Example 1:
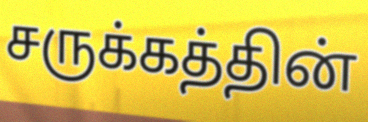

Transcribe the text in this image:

சருக்கத்தின்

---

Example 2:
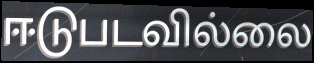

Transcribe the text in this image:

ஈடுபடவில்லை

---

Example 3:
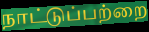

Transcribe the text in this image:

நாட்டுப்பற்றை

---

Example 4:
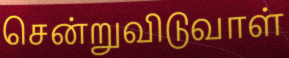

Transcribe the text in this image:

சென்றுவிடுவாள்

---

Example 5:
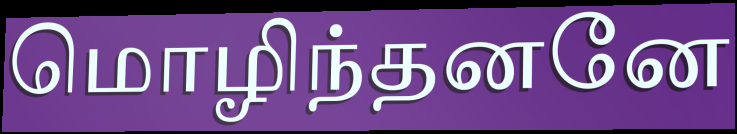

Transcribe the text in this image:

மொழிந்தனனே